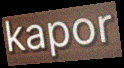
kapor